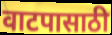
वाटपासाठी